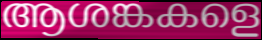
ആശങ്കകളെ